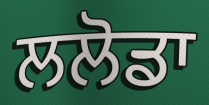
ਲਲੋਡਾ